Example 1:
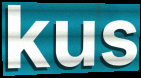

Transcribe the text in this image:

kus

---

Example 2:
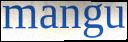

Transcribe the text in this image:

mangu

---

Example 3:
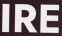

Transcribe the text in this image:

IRE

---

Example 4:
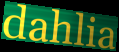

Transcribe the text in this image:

dahlia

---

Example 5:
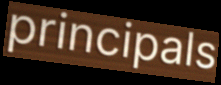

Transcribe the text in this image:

principals